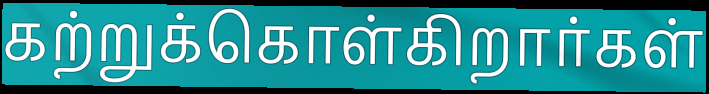
கற்றுக்கொள்கிறார்கள்